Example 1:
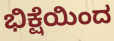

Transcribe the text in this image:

ಭಿಕ್ಷೆಯಿಂದ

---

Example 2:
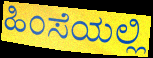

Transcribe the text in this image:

ಹಿಂಸೆಯಲ್ಲಿ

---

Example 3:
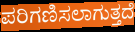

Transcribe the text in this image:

ಪರಿಗಣಿಸಲಾಗುತ್ತದೆ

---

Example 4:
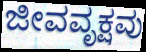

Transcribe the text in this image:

ಜೀವವೃಕ್ಷವು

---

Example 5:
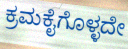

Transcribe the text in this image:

ಕ್ರಮಕೈಗೊಳ್ಳದೇ